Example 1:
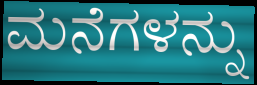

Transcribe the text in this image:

ಮನೆಗಳನ್ನು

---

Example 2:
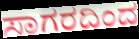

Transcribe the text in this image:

ಸಾಗರದಿಂದ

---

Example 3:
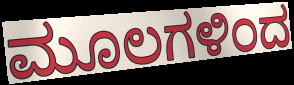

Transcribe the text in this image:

ಮೂಲಗಳಿಂದ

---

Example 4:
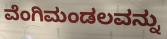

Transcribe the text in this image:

ವೆಂಗಿಮಂಡಲವನ್ನು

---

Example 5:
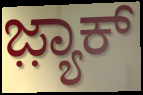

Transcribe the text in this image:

ಜ಼್ಯಾಕ್